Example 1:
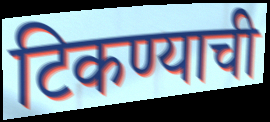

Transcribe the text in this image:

टिकण्याची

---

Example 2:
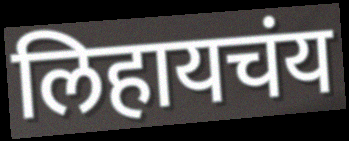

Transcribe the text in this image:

लिहायचंय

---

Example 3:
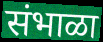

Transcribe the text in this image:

संभाळा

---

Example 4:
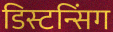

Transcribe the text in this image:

डिस्टन्सिंग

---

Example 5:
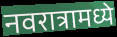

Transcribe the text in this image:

नवरात्रामध्ये